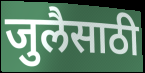
जुलैसाठी